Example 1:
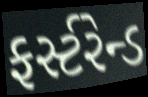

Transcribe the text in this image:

ફર્સ્ટરેન્ડ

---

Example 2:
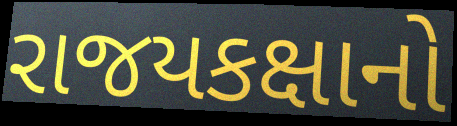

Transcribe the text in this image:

રાજયકક્ષાનો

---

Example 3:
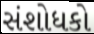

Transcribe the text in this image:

સંશોધકો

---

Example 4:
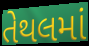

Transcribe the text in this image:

તેથલમાં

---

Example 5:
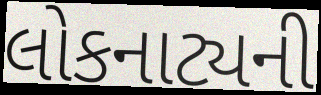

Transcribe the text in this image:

લોકનાટ્યની